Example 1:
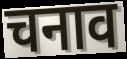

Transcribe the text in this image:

चनाव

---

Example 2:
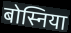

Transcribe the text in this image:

बोस्निया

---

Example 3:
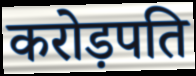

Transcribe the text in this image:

करोड़पति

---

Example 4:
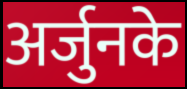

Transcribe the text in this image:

अर्जुनके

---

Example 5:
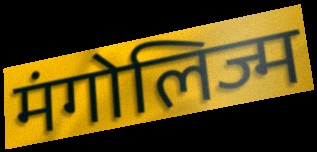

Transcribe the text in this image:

मंगोलिज्म